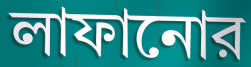
লাফানোর